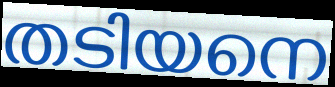
തടിയനെ